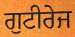
ਗੁਟੀਰੇਜ